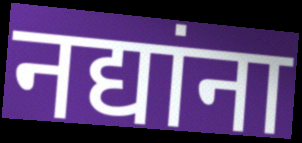
नद्यांना